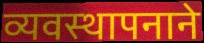
व्यवस्थापनाने